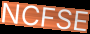
NCFSE